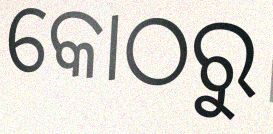
କୋଠରୁ